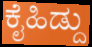
ಕೈಹಿಡ್ದು